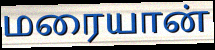
மரையான்